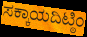
ಸಕ್ಕಾಯದಿಟ್ಠಿಂ